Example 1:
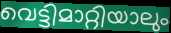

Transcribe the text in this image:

വെട്ടിമാറ്റിയാലും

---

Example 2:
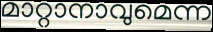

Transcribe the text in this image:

മാറ്റാനാവുമെന്ന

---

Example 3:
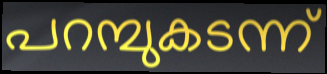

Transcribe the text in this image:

പറമ്പുകടന്ന്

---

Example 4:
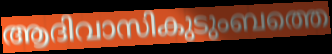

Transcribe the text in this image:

ആദിവാസികുടുംബത്തെ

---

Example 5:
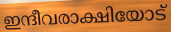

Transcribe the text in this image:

ഇന്ദീവരാക്ഷിയോട്